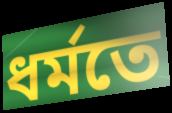
ধৰ্মতে